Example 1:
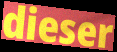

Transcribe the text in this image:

dieser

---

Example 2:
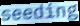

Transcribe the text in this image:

seeding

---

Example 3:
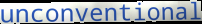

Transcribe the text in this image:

unconventional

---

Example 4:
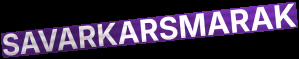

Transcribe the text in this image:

SAVARKARSMARAK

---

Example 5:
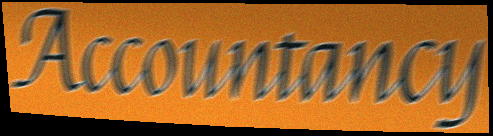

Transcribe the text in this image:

Accountancy